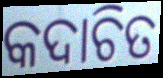
କଦାଚିତ